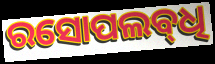
ରସୋପଲବ୍‌ଧି